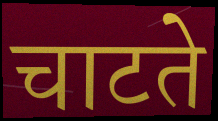
चाटते